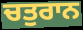
ਚਤੁਰਾਨ